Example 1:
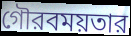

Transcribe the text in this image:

গৌরবময়তার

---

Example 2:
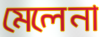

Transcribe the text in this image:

মেলেনা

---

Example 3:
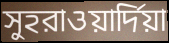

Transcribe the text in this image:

সুহরাওয়ার্দিয়া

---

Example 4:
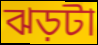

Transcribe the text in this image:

ঝড়টা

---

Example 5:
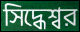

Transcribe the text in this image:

সিদ্ধেশ্বর